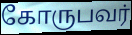
கோருபவர்